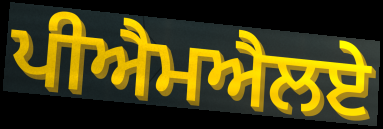
ਪੀਐਮਐਲਏ